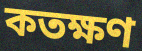
কতক্ষণ